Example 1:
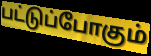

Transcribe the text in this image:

பட்டுப்போகும்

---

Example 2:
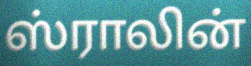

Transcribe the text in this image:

ஸ்ராலின்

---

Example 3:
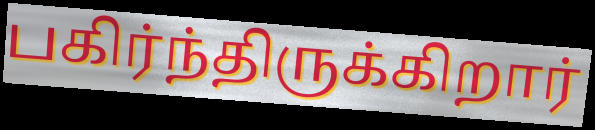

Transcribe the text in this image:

பகிர்ந்திருக்கிறார்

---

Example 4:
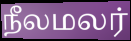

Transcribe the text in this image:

நீலமலர்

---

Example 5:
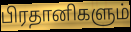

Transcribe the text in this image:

பிரதானிகளும்